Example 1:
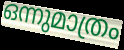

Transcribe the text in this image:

ഒന്നുമാത്രം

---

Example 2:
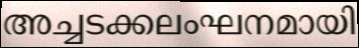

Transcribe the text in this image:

അച്ചടക്കലംഘനമായി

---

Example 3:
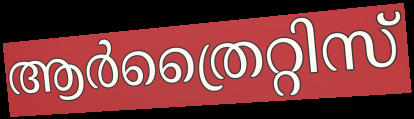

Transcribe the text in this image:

ആർത്രൈറ്റിസ്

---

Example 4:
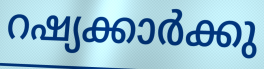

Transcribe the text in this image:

റഷ്യക്കാർക്കു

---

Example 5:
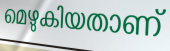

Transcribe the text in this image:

മെഴുകിയതാണ്